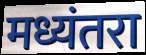
मध्यंतरा